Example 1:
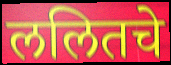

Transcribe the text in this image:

ललितचे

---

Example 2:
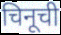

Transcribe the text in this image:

चिनूची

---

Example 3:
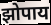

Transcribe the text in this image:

झोपाय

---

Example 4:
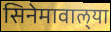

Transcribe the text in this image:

सिनेमावाल्या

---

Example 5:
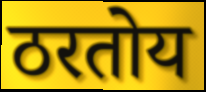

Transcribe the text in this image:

ठरतोय